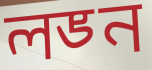
লঙ্ন